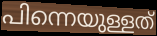
പിന്നെയുള്ളത്